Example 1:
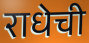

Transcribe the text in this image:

राधेची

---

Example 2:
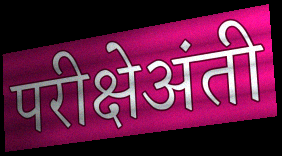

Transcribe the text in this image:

परीक्षेअंती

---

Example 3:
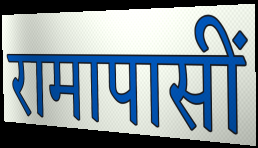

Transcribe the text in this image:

रामापासीं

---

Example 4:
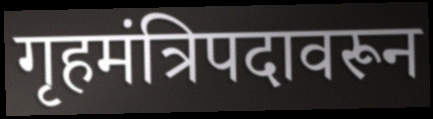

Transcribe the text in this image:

गृहमंत्रिपदावरून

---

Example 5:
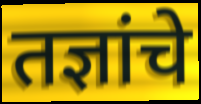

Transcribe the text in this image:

तज्ञांचे